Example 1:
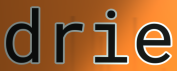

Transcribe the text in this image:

drie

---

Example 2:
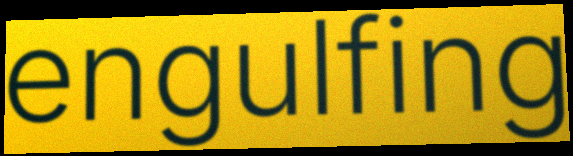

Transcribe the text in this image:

engulfing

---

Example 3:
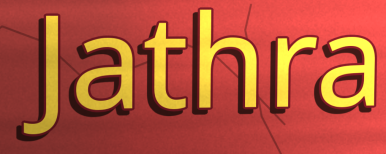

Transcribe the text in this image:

Jathra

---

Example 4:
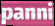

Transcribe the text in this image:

panni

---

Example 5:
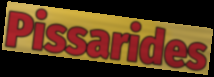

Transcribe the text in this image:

Pissarides